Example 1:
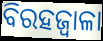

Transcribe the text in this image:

ବିରହଜ୍ୱାଳା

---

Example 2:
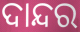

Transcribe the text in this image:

ଦାନ୍ଦର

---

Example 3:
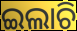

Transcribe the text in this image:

ଇଲାଚି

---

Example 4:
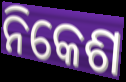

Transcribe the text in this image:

ନିକେଶ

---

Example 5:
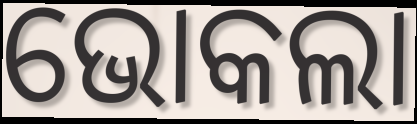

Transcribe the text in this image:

ଭୋକଲା